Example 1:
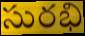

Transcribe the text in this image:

సురభి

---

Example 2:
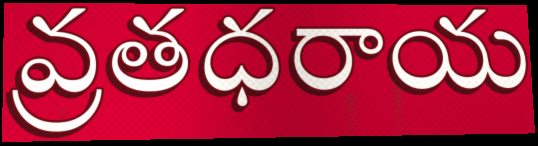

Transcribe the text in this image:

వ్రతధరాయ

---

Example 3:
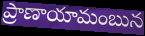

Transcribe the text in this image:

ప్రాణాయామంబున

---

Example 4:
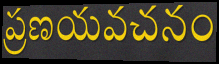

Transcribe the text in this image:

ప్రణయవచనం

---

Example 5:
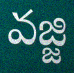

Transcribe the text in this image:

వజ్జి